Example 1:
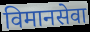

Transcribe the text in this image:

विमानसेवा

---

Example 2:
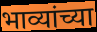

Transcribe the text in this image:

भाव्यांच्या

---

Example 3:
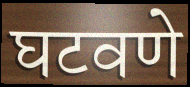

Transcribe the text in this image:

घटवणे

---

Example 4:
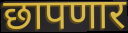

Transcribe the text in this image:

छापणार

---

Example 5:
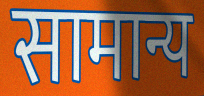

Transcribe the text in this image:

सामान्य